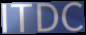
ITDC